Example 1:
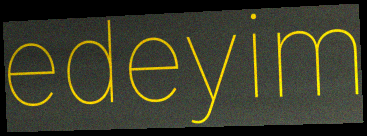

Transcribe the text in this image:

edeyim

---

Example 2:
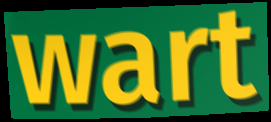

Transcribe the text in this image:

wart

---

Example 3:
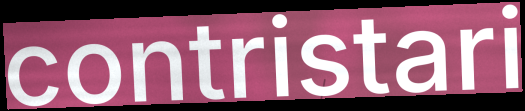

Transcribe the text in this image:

contristari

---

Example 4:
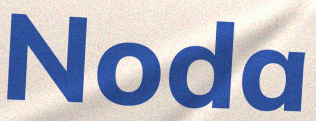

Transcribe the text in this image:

Noda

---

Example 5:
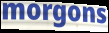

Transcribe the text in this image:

morgons